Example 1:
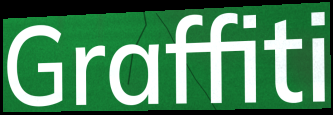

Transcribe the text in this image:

Graffiti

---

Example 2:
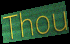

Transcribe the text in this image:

Thou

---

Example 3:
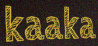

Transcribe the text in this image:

kaaka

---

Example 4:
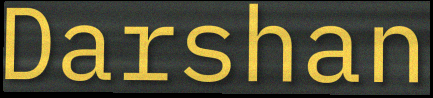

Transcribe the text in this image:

Darshan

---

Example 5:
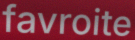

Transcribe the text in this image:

favroite